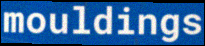
mouldings